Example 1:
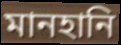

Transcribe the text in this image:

মানহানি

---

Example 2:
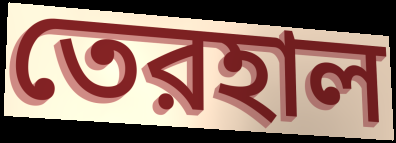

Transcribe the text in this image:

তেরহাল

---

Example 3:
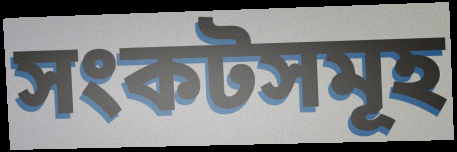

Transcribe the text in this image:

সংকটসমূহ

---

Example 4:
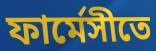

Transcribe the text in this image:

ফার্মেসীতে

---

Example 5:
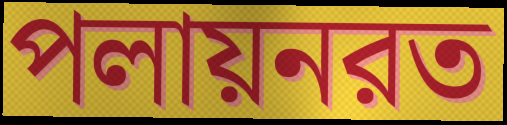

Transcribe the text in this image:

পলায়নরত